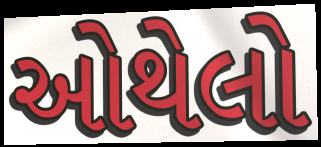
ઓથેલો